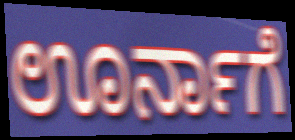
ಊರ್ನಾಗೆ